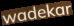
wadekar